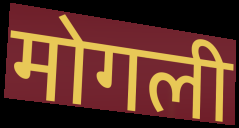
मोगली